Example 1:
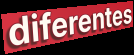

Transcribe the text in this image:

diferentes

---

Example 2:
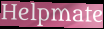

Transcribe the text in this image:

Helpmate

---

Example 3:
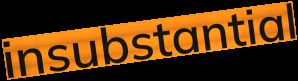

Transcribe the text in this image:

insubstantial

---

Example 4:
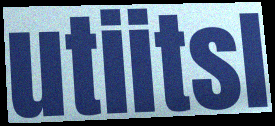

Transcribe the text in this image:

utiitsl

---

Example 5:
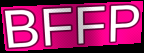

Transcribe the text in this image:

BFFP